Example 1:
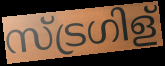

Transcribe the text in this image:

സ്ട്രഗിള്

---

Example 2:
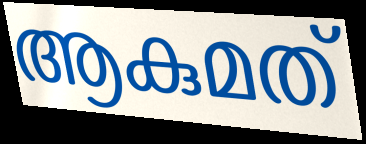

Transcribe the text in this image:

ആകുമത്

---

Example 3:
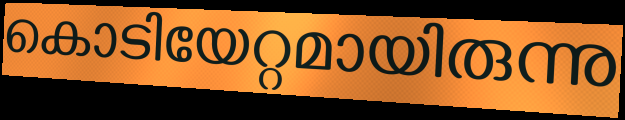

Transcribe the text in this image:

കൊടിയേറ്റമായിരുന്നു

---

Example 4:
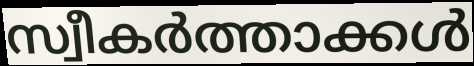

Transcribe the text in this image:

സ്വീകർത്താക്കൾ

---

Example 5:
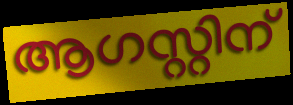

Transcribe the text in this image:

ആഗസ്റ്റിന്